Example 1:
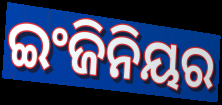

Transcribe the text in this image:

ଇଂଜିନିୟର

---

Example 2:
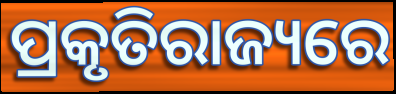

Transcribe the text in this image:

ପ୍ରକୃତିରାଜ୍ୟରେ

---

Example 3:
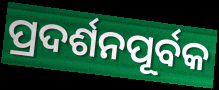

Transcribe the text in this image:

ପ୍ରଦର୍ଶନପୂର୍ବକ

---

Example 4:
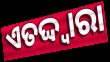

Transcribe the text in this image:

ଏତଦ୍ଦ୍ୱାରା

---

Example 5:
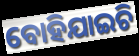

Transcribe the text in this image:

ବୋହିଯାଇଚି